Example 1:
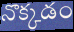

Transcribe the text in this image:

నొక్కడం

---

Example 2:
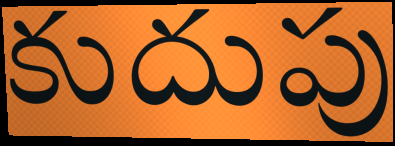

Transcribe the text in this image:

కుదుపు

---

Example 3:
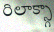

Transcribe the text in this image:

రిలాక్స్గా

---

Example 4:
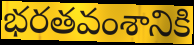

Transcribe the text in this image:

భరతవంశానికి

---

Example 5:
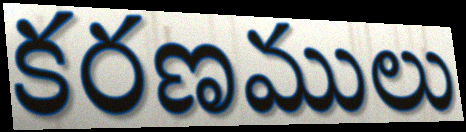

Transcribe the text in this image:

కరణములు